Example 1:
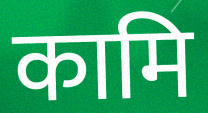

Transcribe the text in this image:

कामि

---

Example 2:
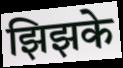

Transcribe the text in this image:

झिझके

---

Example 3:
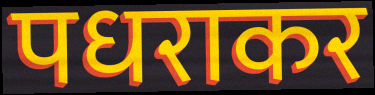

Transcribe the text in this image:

पधराकर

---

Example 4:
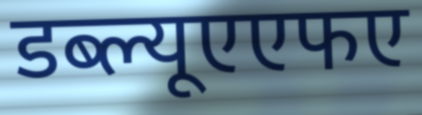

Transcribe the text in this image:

डब्ल्यूएएफए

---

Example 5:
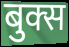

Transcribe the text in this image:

बुक्‍स